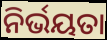
ନିର୍ଭୟତା